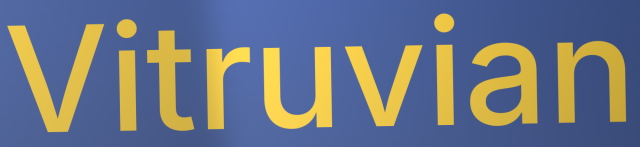
Vitruvian